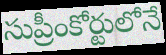
సుప్రీంకోర్టులోనే